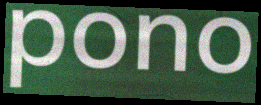
pono